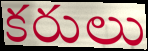
కరులు